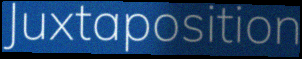
Juxtaposition